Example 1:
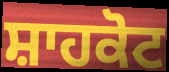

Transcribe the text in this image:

ਸ਼ਾਹਕੋਟ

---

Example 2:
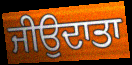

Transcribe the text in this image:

ਜੀਉਦਾਤਾ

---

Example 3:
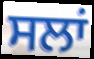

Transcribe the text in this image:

ਸਲਾਂ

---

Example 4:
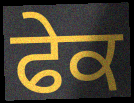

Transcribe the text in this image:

ਫੇਕ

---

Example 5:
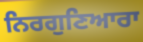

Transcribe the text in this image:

ਨਿਰਗੁਣਿਆਰਾ